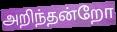
அறிந்தன்றோ